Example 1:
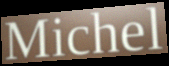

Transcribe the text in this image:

Michel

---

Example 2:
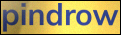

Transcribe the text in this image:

pindrow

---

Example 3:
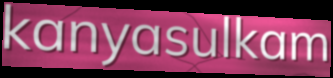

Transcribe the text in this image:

kanyasulkam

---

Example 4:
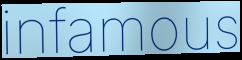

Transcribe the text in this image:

infamous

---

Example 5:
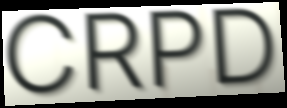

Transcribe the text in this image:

CRPD